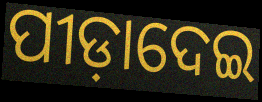
ପୀଡ଼ାଦେଇ